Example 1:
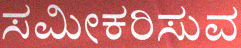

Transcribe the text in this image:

ಸಮೀಕರಿಸುವ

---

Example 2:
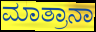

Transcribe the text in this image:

ಮಾತ್ರಾನಾ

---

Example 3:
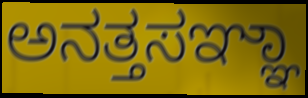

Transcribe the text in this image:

ಅನತ್ತಸಞ್ಞಾ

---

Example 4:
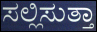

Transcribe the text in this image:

ಸಲ್ಲಿಸುತ್ತಾ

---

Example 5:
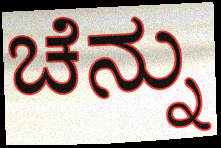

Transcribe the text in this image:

ಚೆನ್ನು